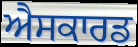
ਐਸਕਾਰਡ